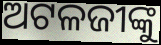
ଅଟଳଜୀଙ୍କୁ